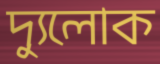
দ্যুলোক